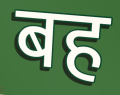
बह